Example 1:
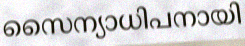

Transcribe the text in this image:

സൈന്യാധിപനായി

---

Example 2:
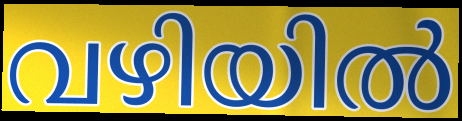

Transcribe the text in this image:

വഴിയിൽ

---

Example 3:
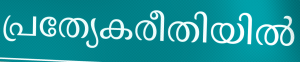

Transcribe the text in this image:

പ്രത്യേകരീതിയിൽ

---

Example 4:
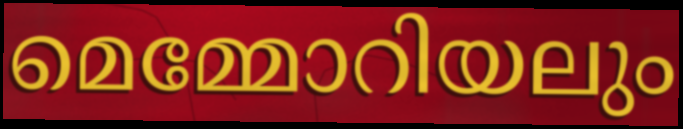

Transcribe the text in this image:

മെമ്മോറിയലും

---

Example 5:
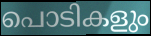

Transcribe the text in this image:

പൊടികളും